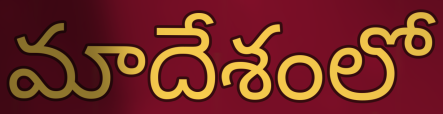
మాదేశంలో